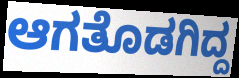
ಆಗತೊಡಗಿದ್ದ